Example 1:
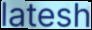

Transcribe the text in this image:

latesh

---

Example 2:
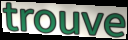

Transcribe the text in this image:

trouve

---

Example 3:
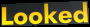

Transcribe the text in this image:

Looked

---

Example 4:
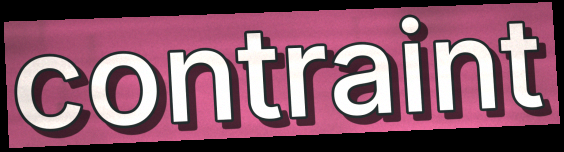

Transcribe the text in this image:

contraint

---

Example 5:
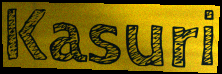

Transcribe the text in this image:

Kasuri